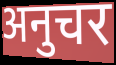
अनुचर